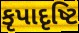
કૃપાદૃષ્ટિ